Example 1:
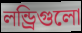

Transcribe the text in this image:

লন্ড্রিগুলো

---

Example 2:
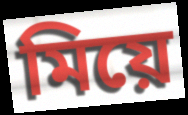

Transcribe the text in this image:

মিয়ে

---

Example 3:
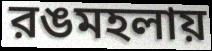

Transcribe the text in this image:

রঙমহলায়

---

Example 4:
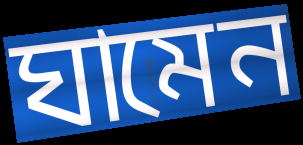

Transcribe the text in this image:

ঘামেন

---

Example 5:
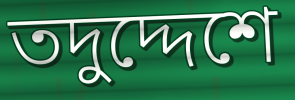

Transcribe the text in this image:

তদুদ্দেশে